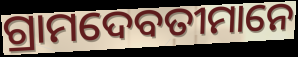
ଗ୍ରାମଦେବତୀମାନେ